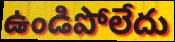
ఉండిపోలేదు